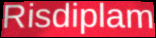
Risdiplam